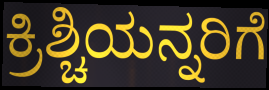
ಕ್ರಿಶ್ಚಿಯನ್ನರಿಗೆ